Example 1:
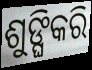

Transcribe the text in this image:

ଶୁଙ୍ଘିକରି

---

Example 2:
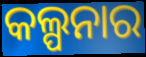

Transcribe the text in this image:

କଲ୍ପନାର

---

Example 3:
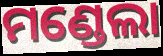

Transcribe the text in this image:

ମଣ୍ଡେଲା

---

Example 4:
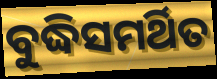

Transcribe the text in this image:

ବୁଦ୍ଧିସମର୍ଥିତ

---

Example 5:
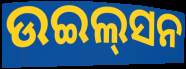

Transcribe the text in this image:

ଉଇଲ୍‌ସନ